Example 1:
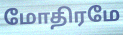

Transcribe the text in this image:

மோதிரமே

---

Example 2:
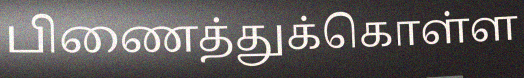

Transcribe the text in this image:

பிணைத்துக்கொள்ள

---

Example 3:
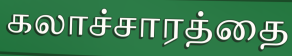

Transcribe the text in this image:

கலாச்சாரத்தை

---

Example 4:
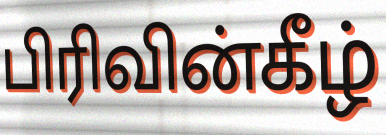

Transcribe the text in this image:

பிரிவின்கீழ்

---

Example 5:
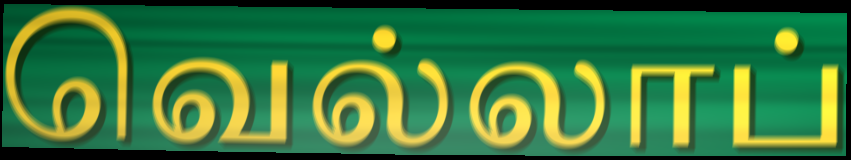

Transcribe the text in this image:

வெல்லாப்